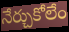
నేర్చుకోలేం